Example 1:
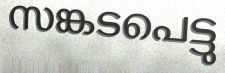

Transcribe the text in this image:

സങ്കടപെട്ടു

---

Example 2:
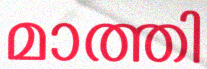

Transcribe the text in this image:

മാത്തി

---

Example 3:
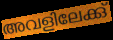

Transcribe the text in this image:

അവളിലേക്കു്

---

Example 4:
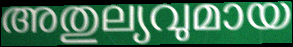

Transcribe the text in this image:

അതുല്യവുമായ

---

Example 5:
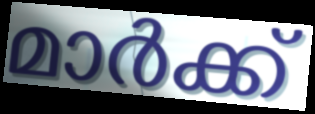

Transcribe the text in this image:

മാർക്ക്